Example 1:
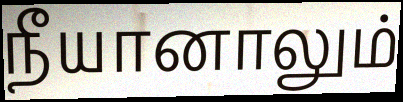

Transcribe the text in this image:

நீயானாலும்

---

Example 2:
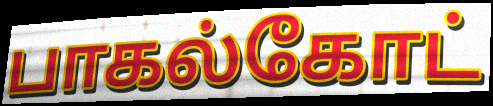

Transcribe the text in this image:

பாகல்கோட்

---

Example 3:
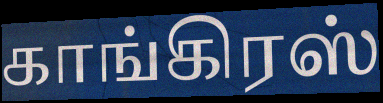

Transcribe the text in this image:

காங்கிரஸ்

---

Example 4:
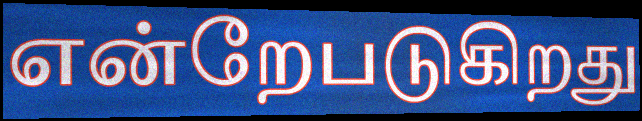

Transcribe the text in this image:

என்றேபடுகிறது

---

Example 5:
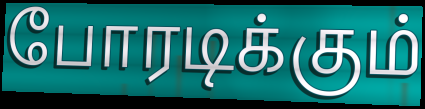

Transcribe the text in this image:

போரடிக்கும்